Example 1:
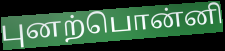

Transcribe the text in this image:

புனற்பொன்னி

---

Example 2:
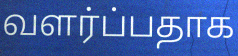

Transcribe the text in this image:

வளர்ப்பதாக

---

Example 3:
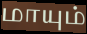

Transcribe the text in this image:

மாயும்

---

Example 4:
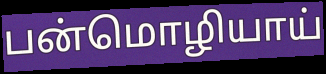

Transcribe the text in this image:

பன்மொழியாய்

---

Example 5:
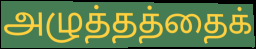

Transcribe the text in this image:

அழுத்தத்தைக்